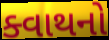
ક્વાથનો